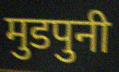
मुडपुनी